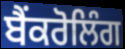
ਬੈਂਕਰੋਲਿੰਗ